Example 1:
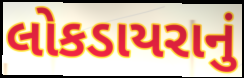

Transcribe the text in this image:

લોકડાયરાનું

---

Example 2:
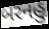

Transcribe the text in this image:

બરનહુ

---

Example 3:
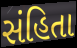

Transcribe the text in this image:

સંહિતા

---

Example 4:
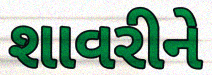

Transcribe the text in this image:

શાવરીને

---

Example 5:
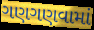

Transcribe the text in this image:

ગણગણવામાં